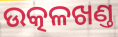
ଉତ୍କଳଖଣ୍ତ